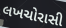
લખચોરાસી